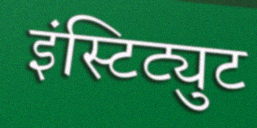
इंस्टिट्युट